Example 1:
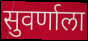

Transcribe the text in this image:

सुवर्णाला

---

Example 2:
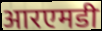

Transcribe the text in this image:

आरएमडी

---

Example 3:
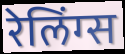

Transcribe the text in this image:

रेलिंग्स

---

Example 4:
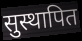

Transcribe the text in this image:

सुस्थापित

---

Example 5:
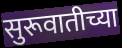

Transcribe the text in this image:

सुरूवातीच्या